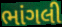
ભાંગલી